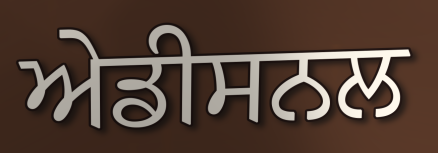
ਅੇਡੀਸਨਲ